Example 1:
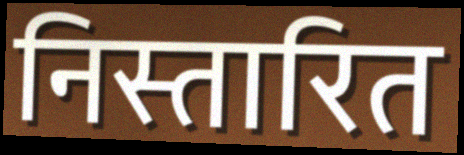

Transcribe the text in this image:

निस्तारित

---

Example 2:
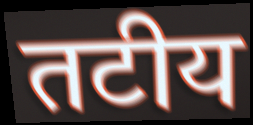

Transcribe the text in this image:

तटीय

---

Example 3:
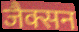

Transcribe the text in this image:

जैक्सन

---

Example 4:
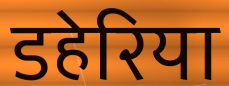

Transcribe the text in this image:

डहेरिया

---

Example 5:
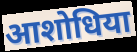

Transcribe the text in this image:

आशोधिया